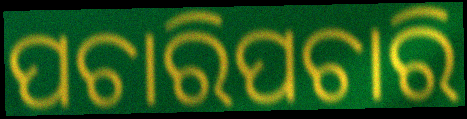
ପଚାରିପଚାରି